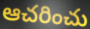
ఆచరించు